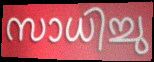
സാധിച്ചു